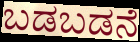
ಬಡಬಡನೆ